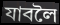
যাবলৈ